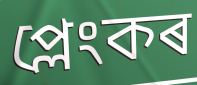
প্লেংকৰ